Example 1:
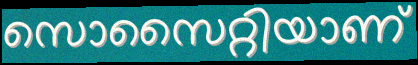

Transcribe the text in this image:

സൊസൈറ്റിയാണ്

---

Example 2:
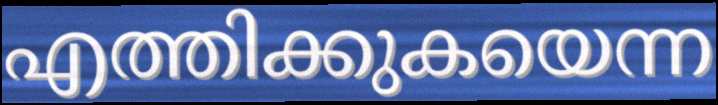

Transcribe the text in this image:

എത്തിക്കുകയെന്ന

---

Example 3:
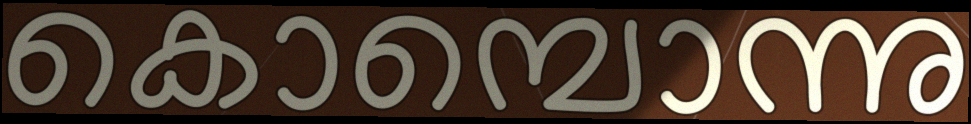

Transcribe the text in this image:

കൊമ്പൊന്നു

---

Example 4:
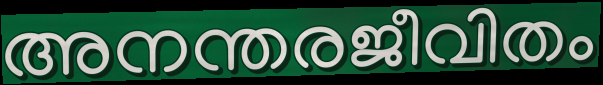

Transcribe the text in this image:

അനന്തരജീവിതം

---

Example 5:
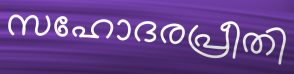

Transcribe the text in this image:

സഹോദരപ്രീതി